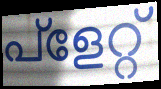
പ്ളേറ്റ്